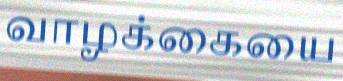
வாழக்கையை